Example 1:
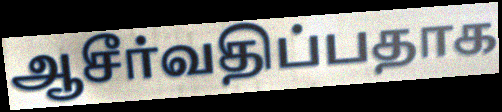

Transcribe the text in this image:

ஆசீர்வதிப்பதாக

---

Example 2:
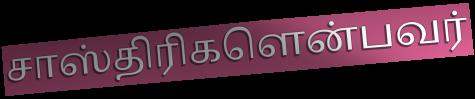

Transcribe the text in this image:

சாஸ்திரிகளென்பவர்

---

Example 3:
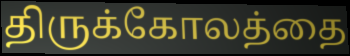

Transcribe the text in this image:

திருக்கோலத்தை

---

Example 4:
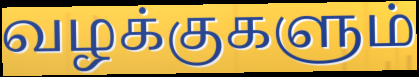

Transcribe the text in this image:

வழக்குகளும்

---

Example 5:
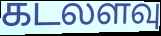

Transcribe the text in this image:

கடலளவு